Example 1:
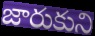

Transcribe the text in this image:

జారుకుని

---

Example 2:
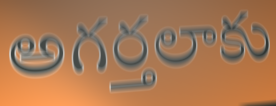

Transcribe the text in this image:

అగర్తలాకు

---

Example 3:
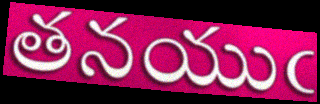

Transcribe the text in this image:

తనయుఁ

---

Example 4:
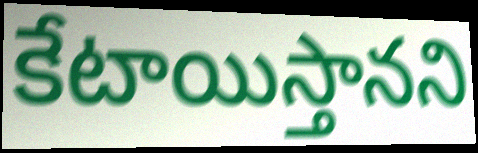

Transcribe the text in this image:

కేటాయిస్తానని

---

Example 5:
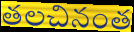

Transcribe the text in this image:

తలచినంత